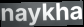
naykha